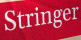
Stringer